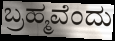
ಬ್ರಹ್ಮವೆಂದು